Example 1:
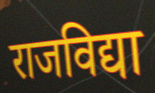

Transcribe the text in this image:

राजविद्या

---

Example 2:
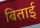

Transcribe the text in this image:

बिताई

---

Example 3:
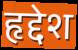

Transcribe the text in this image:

हृद्देश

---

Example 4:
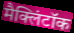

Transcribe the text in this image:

मैक्लिंटॉक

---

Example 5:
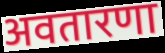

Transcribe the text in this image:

अवतारणा